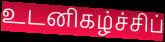
உடனிகழ்ச்சிப்